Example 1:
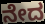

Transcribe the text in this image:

ನೇದ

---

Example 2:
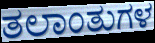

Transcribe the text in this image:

ತಲಾಂತುಗಳ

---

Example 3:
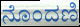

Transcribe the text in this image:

ನೊಂದಣಿ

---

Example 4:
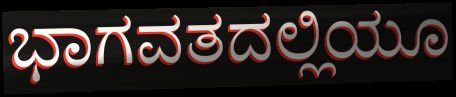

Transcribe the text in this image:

ಭಾಗವತದಲ್ಲಿಯೂ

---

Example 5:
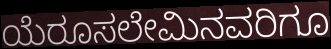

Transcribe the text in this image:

ಯೆರೂಸಲೇಮಿನವರಿಗೂ